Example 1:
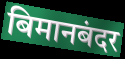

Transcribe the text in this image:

बिमानबंदर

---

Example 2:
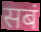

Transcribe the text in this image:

सबं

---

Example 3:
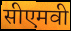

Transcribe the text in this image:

सीएमवी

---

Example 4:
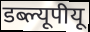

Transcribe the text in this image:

डब्ल्यूपीयू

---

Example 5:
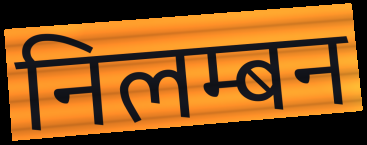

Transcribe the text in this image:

निलम्‍बन